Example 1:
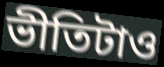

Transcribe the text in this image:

ভীতিটাও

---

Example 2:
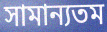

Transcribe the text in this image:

সামান্যতম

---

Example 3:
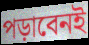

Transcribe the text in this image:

পড়াবেনই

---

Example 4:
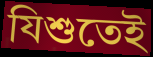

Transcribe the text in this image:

যিশুতেই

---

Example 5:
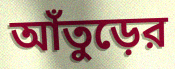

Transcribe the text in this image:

আঁতুড়ের